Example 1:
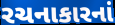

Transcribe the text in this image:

રચનાકારનાં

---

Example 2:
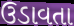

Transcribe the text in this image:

ઉડાવતા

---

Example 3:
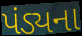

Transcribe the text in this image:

પંડ્યના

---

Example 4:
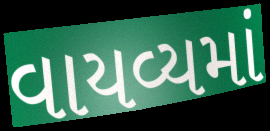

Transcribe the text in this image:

વાયવ્યમાં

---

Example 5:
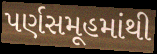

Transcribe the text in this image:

પર્ણસમૂહમાંથી